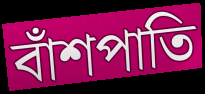
বাঁশপাতি